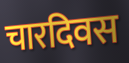
चारदिवस